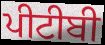
ਪੀਟੀਬੀ